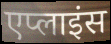
एप्लाइंस